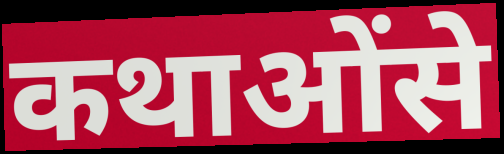
कथाओंसे